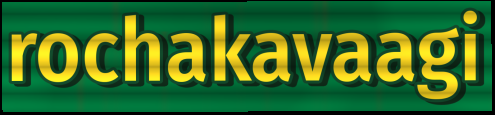
rochakavaagi